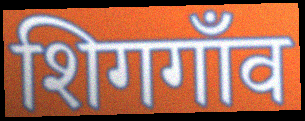
शिगगाँव